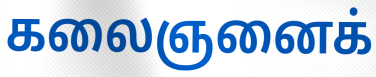
கலைஞனைக்